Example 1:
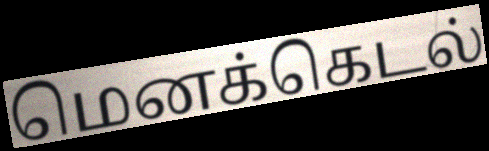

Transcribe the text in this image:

மெனக்கெடல்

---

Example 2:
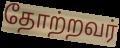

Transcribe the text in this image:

தோற்றவர்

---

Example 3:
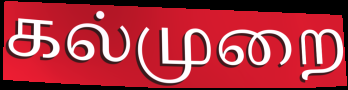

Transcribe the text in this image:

கல்முறை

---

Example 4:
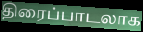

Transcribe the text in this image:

திரைப்பாடலாக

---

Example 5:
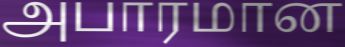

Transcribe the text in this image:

அபாரமான